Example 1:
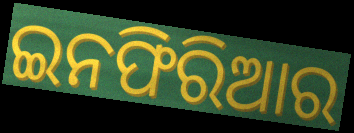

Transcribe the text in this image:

ଇନଫିରିଆର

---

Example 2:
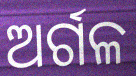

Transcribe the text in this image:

ଅର୍ଗଳ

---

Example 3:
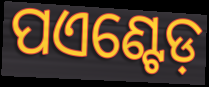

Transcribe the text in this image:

ପଏଣ୍ଟେଡ଼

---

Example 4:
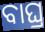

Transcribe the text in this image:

ବାଘ୍ର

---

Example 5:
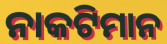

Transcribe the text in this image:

ନାକଟିମାନ